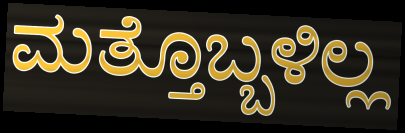
ಮತ್ತೊಬ್ಬಳಿಲ್ಲ